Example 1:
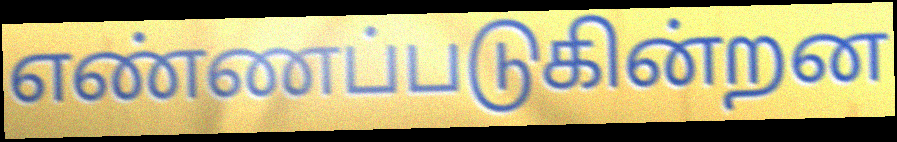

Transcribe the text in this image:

எண்ணப்படுகின்றன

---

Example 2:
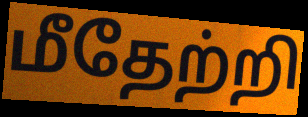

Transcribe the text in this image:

மீதேற்றி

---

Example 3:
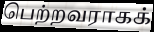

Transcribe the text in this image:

பெற்றவராகக்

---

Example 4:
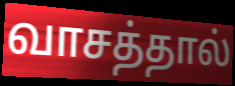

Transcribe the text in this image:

வாசத்தால்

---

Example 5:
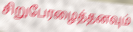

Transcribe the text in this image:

சிறுபேரழைத்தனவும்